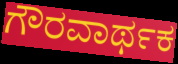
ಗೌರವಾರ್ಥಕ